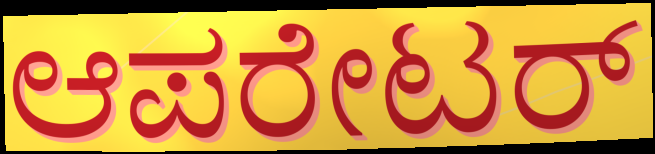
ಆಪರೇಟರ್